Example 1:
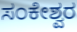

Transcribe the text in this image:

ಸಂಕೇಶ್ವರ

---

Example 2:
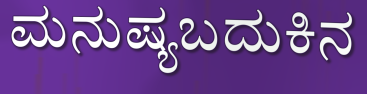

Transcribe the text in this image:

ಮನುಷ್ಯಬದುಕಿನ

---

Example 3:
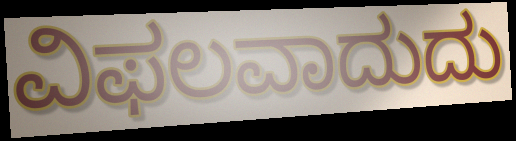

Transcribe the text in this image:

ವಿಫಲವಾದುದು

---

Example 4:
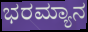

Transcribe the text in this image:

ಭರಮ್ಯಾನ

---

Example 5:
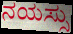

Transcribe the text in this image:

ನಯಸ್ಸು